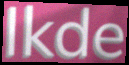
Ikde